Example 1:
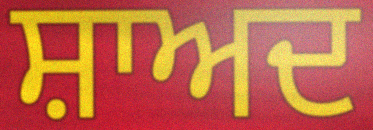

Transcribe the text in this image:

ਸ਼ਾਅਦ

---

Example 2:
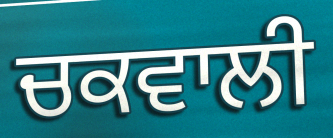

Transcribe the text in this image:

ਚਕਵਾਲੀ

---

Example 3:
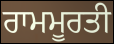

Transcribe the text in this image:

ਰਾਮਮੂਰਤੀ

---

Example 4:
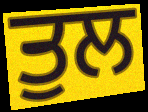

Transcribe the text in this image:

ਤੁਲ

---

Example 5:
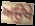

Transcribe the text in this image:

ਅਉਖੇ